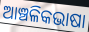
ଆଞ୍ଚଳିକଭାଷା